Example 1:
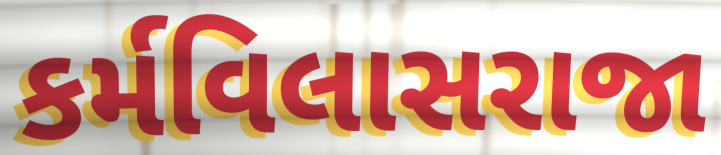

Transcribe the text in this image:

કર્મવિલાસરાજા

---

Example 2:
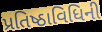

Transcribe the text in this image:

પ્રતિષ્ઠાવિધિની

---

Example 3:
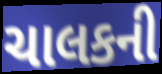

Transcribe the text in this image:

ચાલકની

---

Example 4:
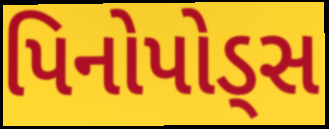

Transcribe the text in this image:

પિનોપોડ્સ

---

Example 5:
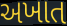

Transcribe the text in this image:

અખાત